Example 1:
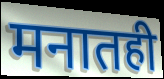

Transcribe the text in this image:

मनातही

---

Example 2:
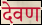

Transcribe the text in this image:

देवण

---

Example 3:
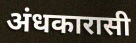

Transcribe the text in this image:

अंधकारासी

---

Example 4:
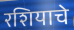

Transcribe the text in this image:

रशियाचे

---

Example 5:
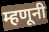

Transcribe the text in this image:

म्हणूनी